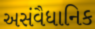
અસંવૈધાનિક